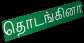
தொடங்கினா